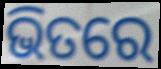
ଭିତରେ